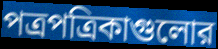
পত্রপত্রিকাগুলোর